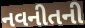
નવનીતની